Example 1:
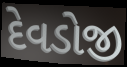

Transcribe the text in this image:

દેવડોજી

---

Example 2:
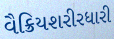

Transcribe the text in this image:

વૈક્રિયશરીરધારી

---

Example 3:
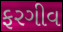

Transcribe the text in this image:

ફરગીવ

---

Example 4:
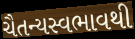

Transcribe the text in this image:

ચૈતન્યસ્વભાવથી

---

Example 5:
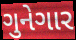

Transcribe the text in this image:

ગુનેગાર